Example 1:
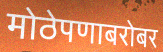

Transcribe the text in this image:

मोठेपणाबरोबर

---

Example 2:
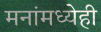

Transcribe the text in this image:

मनांमध्येही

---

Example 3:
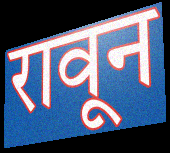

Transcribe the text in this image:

रावून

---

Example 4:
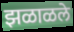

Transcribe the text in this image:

झळाळले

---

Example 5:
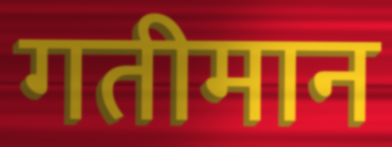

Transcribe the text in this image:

गतीमान